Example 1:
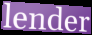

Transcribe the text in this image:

lender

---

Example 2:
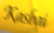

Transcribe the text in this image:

Kasbai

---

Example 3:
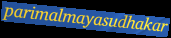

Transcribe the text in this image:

parimalmayasudhakar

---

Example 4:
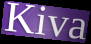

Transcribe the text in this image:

Kiva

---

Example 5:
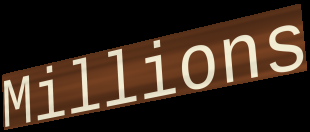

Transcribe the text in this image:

Millions